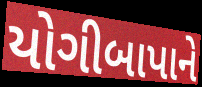
યોગીબાપાને